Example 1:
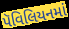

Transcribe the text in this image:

પૅવિલિયનમાં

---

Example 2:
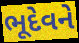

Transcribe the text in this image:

ભૂદેવને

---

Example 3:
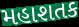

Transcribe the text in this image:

મહાશતક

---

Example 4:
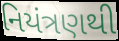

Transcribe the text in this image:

નિયંત્રણથી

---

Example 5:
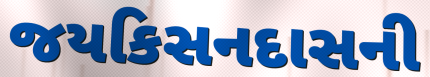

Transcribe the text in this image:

જયકિસનદાસની